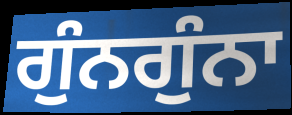
ਗੁੰਨਗੁੰਨਾ